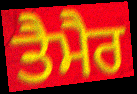
ਤੈਮੈਰ